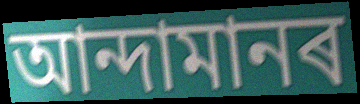
আন্দামানৰ